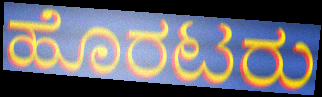
ಹೊರಟರು